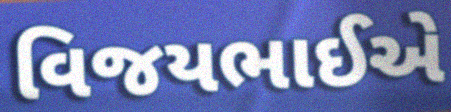
વિજયભાઈએ